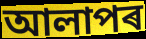
আলাপৰ